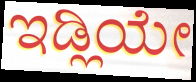
ಇಡ್ಲಿಯೇ